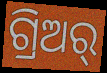
ଗ୍ରିଅର୍